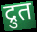
द्रुत